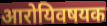
आरोयिवषयक